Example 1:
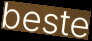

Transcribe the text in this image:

beste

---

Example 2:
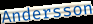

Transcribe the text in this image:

Andersson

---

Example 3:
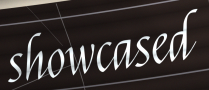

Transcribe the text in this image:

showcased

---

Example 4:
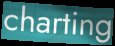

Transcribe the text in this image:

charting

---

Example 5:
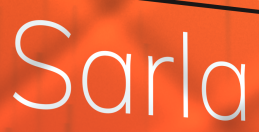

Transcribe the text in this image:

Sarla